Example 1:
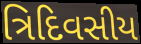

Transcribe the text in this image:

ત્રિદિવસીય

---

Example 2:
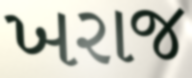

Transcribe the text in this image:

ખરાજ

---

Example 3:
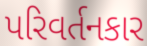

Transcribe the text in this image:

પરિવર્તનકાર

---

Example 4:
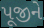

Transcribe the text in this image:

પૂજીને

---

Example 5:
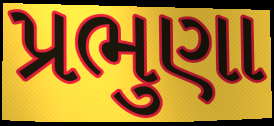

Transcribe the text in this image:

પ્રભુણા